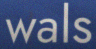
wals